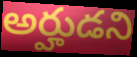
అర్హుడని